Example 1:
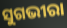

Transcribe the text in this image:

ସୁଗଭୀରା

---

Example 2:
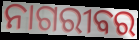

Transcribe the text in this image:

ନାଗରୀବର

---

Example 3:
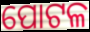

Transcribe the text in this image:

ପୋଟଳ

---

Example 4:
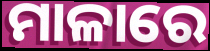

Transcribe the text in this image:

ମାଳାରେ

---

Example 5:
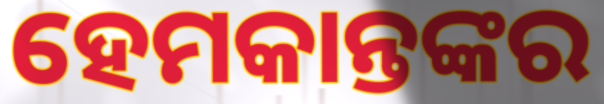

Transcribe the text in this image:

ହେମକାନ୍ତଙ୍କର